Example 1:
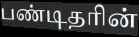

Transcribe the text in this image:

பண்டிதரின்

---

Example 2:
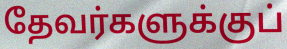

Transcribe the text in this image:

தேவர்களுக்குப்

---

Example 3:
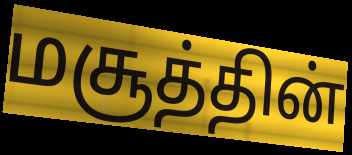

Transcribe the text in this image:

மசூத்தின்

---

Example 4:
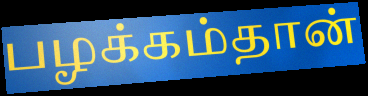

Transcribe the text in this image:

பழக்கம்தான்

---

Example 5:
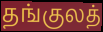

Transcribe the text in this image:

தங்குலத்